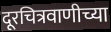
दूरचित्रवाणीच्या